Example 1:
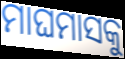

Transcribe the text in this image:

ମାଘମାସକୁ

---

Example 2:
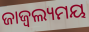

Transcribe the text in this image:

ଜାଜ୍ୱଲ୍ୟମୟ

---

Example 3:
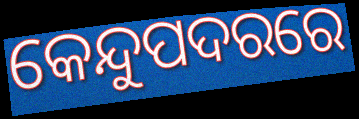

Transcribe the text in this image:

କେନ୍ଦୁପଦରରେ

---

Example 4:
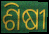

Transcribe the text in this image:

ଶିଷୀ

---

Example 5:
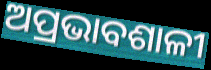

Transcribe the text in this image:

ଅପ୍ରଭାବଶାଳୀ